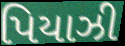
પિયાઝી